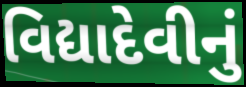
વિદ્યાદેવીનું